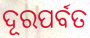
ଦୂରପର୍ବତ